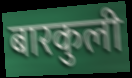
बारकुली